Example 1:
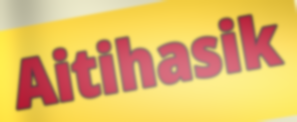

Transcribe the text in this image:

Aitihasik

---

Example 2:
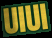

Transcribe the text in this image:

UIUI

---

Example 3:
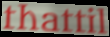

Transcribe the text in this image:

thattil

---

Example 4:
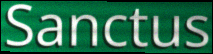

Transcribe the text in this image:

Sanctus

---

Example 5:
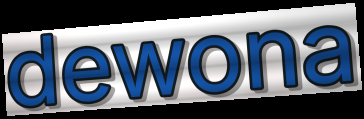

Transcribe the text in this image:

dewona